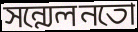
সন্মেলনতো